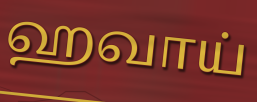
ஹவாய்